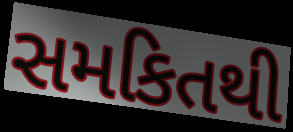
સમકિતથી